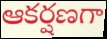
ఆకర్షణగా